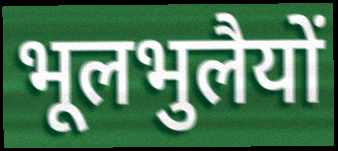
भूलभुलैयों